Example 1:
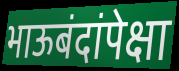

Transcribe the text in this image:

भाऊबंदांपेक्षा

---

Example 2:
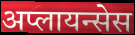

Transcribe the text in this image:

अप्लायन्सेस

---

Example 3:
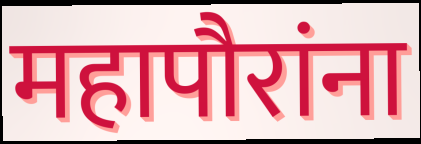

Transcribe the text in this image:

महापौरांना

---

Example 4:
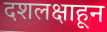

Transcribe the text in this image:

दशलक्षाहून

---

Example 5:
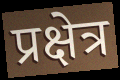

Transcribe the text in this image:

प्रक्षेत्र